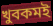
খুবকমই